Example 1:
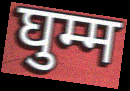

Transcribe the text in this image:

घुम्म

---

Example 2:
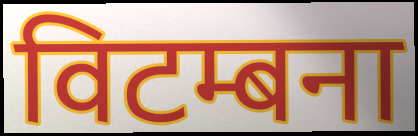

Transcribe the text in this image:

विटम्बना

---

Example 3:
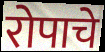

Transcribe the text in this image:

रोपाचे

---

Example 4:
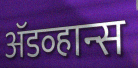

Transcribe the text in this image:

ॲडव्हान्स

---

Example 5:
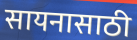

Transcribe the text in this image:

सायनासाठी